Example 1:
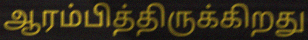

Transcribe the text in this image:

ஆரம்பித்திருக்கிறது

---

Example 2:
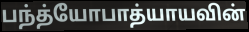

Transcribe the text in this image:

பந்த்யோபாத்யாயவின்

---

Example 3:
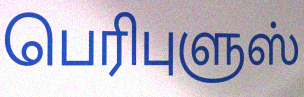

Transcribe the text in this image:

பெரிபுளுஸ்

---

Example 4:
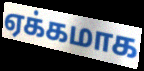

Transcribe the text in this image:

ஏக்கமாக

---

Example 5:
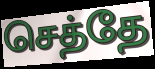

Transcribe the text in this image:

செத்தே